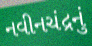
નવીનચંદ્રનું